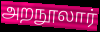
அறநூலார்